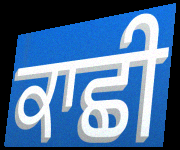
ਕਾਛੀ